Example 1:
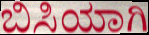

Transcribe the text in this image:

ಬಿಸಿಯಾಗಿ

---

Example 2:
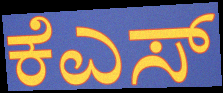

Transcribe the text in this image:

ಕೆಎಸ್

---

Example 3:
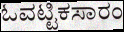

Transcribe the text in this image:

ಓವಟ್ಟಿಕಸಾರಂ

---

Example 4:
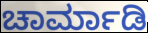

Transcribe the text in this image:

ಚಾರ್ಮಾಡಿ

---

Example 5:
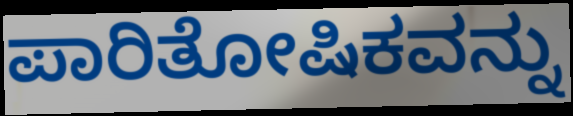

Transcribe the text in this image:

ಪಾರಿತೋಷಿಕವನ್ನು